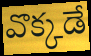
వొక్కడే